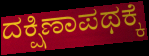
ದಕ್ಷಿಣಾಪಥಕ್ಕೆ